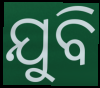
ଯୁବି